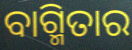
ବାଗ୍ମିତାର